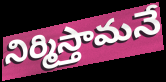
నిర్మిస్తామనే